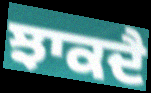
ਝਾਕਦੈ